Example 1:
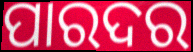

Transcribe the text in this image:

ପାରଦର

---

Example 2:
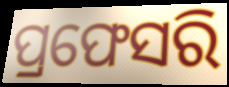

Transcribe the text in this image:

ପ୍ରଫେସରି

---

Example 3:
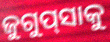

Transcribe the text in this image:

ଜୁଗୁପ୍‍ସାକୁ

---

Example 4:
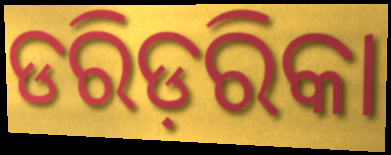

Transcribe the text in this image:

ଡରିଡ଼ରିକା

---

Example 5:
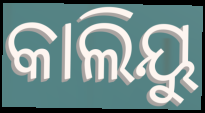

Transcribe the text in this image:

କାଲିୟୁ